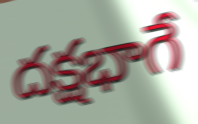
దక్షభాగే